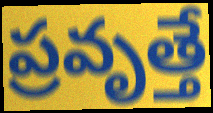
ప్రవృత్తే